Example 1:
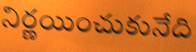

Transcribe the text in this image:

నిర్ణయించుకునేది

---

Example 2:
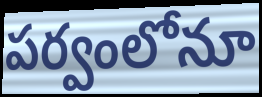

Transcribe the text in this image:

పర్వంలోనూ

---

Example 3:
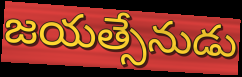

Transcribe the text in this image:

జయత్సేనుడు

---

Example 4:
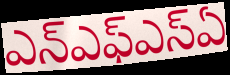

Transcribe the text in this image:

ఎన్ఎఫ్ఎస్ఏ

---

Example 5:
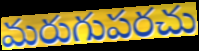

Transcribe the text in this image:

మరుగుపరచు